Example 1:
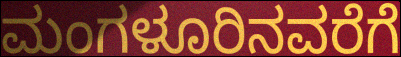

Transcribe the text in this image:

ಮಂಗಳೂರಿನವರೆಗೆ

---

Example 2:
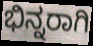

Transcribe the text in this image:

ಭಿನ್ನರಾಗಿ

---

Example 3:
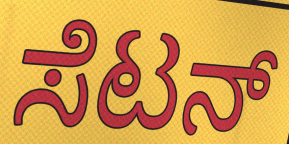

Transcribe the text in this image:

ಸೆಟನ್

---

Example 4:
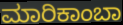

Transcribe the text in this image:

ಮಾರಿಕಾಂಬಾ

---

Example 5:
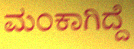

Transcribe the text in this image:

ಮಂಕಾಗಿದ್ದೆ